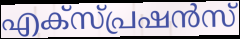
എക്സ്പ്രഷൻസ്